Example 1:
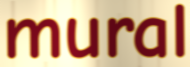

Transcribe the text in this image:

mural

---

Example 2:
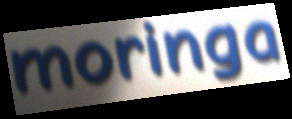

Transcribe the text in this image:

moringa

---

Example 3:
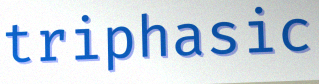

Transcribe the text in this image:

triphasic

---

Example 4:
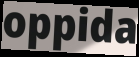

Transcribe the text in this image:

oppida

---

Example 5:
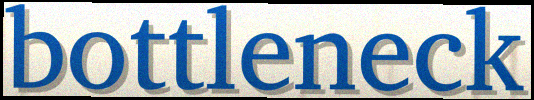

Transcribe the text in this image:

bottleneck